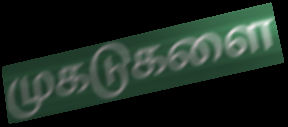
முகடுகளை